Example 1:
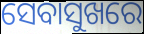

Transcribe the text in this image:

ସେବାସୁଖରେ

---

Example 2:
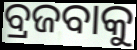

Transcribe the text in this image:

ବ୍ରଜବାକୁ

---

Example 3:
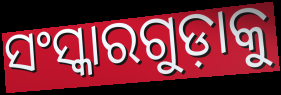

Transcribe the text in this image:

ସଂସ୍କାରଗୁଡ଼ାକୁ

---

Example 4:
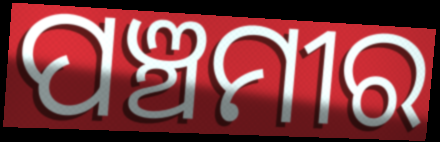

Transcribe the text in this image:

ପଞ୍ଚମୀର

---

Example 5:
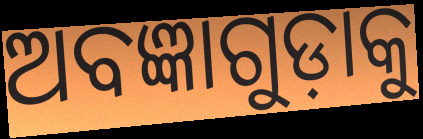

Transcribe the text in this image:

ଅବଜ୍ଞାଗୁଡ଼ାକୁ